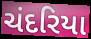
ચંદરિયા